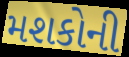
મશકોની